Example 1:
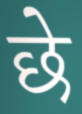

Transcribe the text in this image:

छे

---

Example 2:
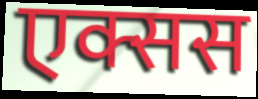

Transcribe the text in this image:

एक्सस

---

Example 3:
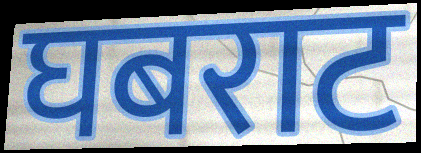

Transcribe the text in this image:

घबराट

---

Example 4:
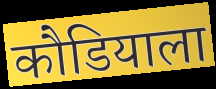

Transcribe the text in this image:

कौडियाला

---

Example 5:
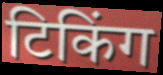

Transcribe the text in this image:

टिकिंग